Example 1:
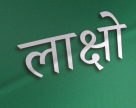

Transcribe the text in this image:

लाक्षो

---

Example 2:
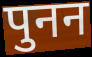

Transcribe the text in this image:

पुनन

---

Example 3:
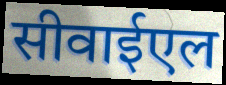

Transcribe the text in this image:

सीवाईएल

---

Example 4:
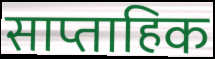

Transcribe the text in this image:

साप्ताहिक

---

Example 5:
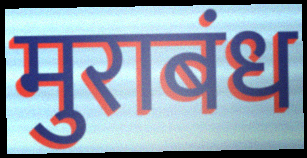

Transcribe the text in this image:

मुराबंध